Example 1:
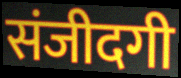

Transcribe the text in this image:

संजीदगी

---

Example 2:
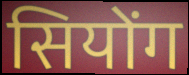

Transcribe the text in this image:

सियोंग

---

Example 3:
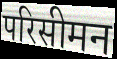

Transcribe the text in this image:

परिसीमन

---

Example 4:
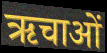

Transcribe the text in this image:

ऋचाओं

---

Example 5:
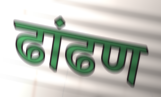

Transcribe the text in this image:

ढांढण